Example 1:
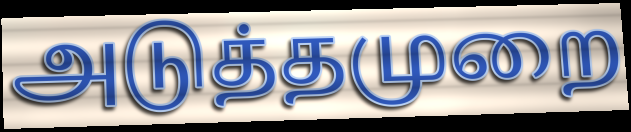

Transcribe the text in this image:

அடுத்தமுறை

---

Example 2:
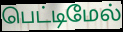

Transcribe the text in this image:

பெட்டிமேல்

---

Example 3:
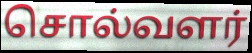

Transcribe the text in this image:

சொல்வளர்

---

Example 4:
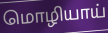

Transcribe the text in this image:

மொழியாய்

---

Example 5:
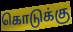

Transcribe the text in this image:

கொடுக்கு